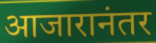
आजारानंतर